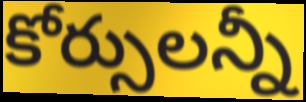
కోర్సులన్నీ